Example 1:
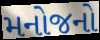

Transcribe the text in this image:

મનોજનો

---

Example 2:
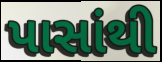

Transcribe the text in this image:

પાસાંથી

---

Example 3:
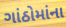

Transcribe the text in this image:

ગાંઠોમાંના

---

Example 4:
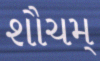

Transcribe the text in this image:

શૌચમ્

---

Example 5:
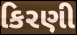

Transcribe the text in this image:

કિરણી